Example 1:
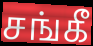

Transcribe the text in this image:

சங்கீ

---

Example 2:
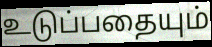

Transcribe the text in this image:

உடுப்பதையும்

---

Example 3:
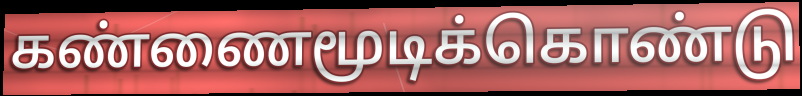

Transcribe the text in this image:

கண்ணைமூடிக்கொண்டு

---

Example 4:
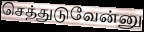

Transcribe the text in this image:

செத்துடுவேன்னு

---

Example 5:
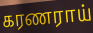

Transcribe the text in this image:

கரணராய்